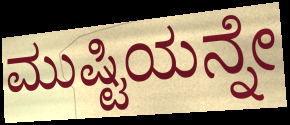
ಮುಷ್ಟಿಯನ್ನೇ